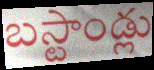
బస్టాండ్లు